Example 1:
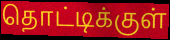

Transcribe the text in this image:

தொட்டிக்குள்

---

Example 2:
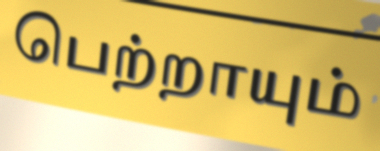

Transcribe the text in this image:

பெற்றாயும்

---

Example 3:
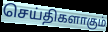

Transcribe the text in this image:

செய்திகளாகும்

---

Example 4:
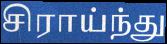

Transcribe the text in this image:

சிராய்ந்து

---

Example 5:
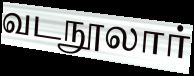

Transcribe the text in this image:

வடநூலார்